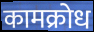
कामक्रोध